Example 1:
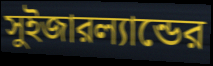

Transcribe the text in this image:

সুইজারল্যান্ডের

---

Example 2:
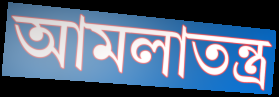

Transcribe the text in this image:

আমলাতন্ত্র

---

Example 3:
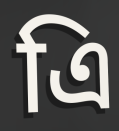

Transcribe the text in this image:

এি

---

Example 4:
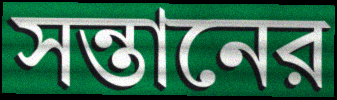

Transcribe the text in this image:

সন্তানের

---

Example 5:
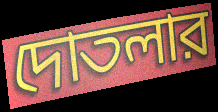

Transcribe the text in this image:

দোতলার